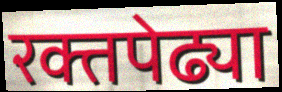
रक्तपेढ्या